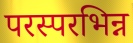
परस्परभिन्न